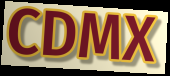
CDMX